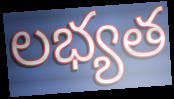
లభ్యత